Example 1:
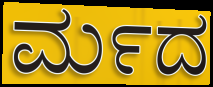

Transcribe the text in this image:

ರ್ಮದ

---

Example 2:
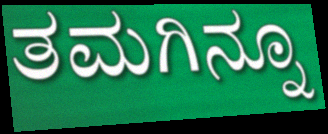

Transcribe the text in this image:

ತಮಗಿನ್ನೂ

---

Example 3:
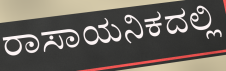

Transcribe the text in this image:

ರಾಸಾಯನಿಕದಲ್ಲಿ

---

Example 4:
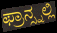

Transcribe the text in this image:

ಫ್ರಾನ್ಸ್ನಲ್ಲಿ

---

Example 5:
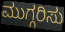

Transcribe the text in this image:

ಮುಗ್ಗರಿಸು